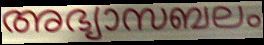
അഭ്യാസബലം